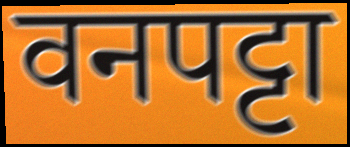
वनपट्टा